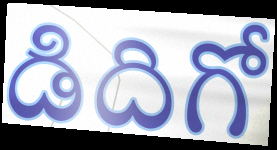
డిదిగో